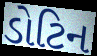
ડોટિન